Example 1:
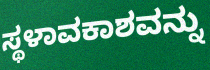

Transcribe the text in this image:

ಸ್ಥಳಾವಕಾಶವನ್ನು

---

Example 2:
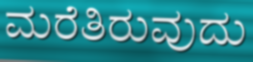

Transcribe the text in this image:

ಮರೆತಿರುವುದು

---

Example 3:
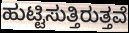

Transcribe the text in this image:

ಹುಟ್ಟಿಸುತ್ತಿರುತ್ತವೆ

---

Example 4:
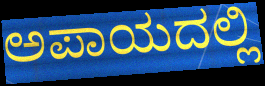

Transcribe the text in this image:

ಅಪಾಯದಲ್ಲಿ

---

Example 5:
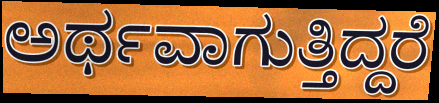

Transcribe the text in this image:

ಅರ್ಥವಾಗುತ್ತಿದ್ದರೆ